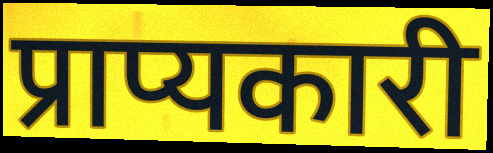
प्राप्यकारी